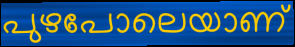
പുഴപോലെയാണ്